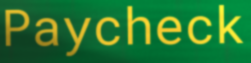
Paycheck